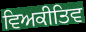
ਵਿਅਕੀਤਿਵ